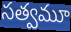
సత్వమూ